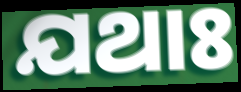
ଯଥାଃ